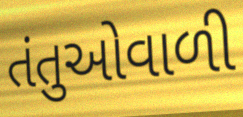
તંતુઓવાળી